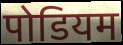
पोडियम